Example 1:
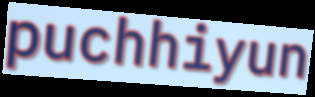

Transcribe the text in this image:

puchhiyun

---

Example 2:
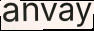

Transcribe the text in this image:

anvay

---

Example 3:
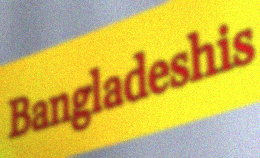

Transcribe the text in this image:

Bangladeshis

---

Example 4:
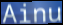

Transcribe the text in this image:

Ainu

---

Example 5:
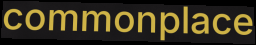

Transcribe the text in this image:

commonplace